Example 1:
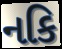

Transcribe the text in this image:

નકિ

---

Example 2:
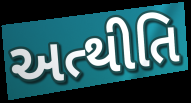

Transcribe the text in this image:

અત્થીતિ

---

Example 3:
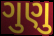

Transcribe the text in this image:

ગુણુ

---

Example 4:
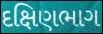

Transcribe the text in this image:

દક્ષિણભાગ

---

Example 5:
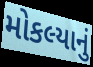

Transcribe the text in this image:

મોકલ્યાનું